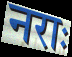
नराः